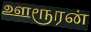
ஊரூரன்